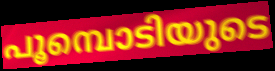
പൂമ്പൊടിയുടെ